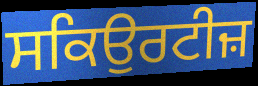
ਸਕਿਉਰਟੀਜ਼